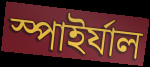
স্পাইর্যাল